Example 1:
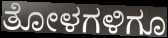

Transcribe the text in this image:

ತೋಳಗಳಿಗೂ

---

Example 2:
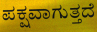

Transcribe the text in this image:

ಪಕ್ಷವಾಗುತ್ತದೆ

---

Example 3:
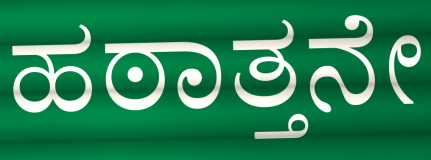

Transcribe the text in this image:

ಹಠಾತ್ತನೇ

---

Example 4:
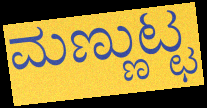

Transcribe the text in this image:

ಮಣ್ಣುಟ್ಟ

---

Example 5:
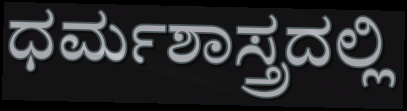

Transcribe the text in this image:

ಧರ್ಮಶಾಸ್ತ್ರದಲ್ಲಿ